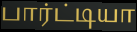
பார்ட்டியா